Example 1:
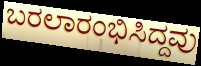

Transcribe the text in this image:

ಬರಲಾರಂಭಿಸಿದ್ದವು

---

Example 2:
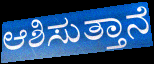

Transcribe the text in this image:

ಆಶಿಸುತ್ತಾನೆ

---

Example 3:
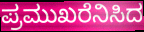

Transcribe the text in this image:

ಪ್ರಮುಖರೆನಿಸಿದ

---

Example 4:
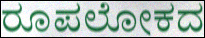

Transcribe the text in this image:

ರೂಪಲೋಕದ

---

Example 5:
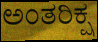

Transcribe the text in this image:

ಅಂತರಿಕ್ಷ